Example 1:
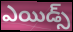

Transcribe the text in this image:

ఎయిడ్స్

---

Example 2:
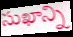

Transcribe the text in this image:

సుఖాన్ని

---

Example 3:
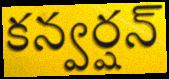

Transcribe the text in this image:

కన్వర్షన్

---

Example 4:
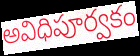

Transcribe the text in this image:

అవిధిపూర్వకం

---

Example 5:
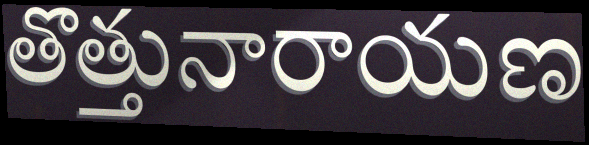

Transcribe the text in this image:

తొత్తునారాయణ